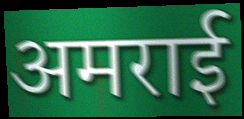
अमराई